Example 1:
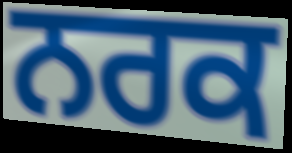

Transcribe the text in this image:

ਨਰਕ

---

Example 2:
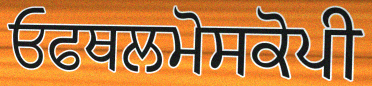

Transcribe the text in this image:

ਓਫਥਲਮੋਸਕੋਪੀ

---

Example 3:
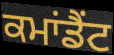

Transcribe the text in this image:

ਕਮਾਂਡੈਂਟ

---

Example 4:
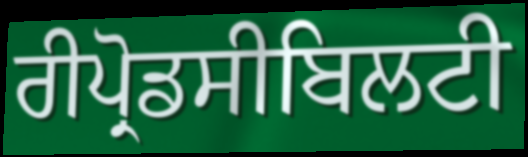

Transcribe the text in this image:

ਰੀਪ੍ਰੋਡਸੀਬਿਲਟੀ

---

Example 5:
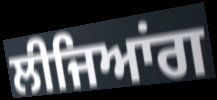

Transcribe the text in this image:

ਲੀਜਿਆਂਗ